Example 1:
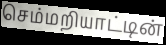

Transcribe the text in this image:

செம்மறியாட்டின்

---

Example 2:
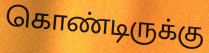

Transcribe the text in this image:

கொண்டிருக்கு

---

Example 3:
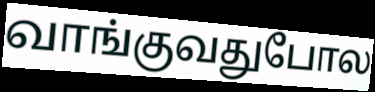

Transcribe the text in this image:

வாங்குவதுபோல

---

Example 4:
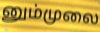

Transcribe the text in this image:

னும்முலை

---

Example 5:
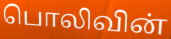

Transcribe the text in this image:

பொலிவின்